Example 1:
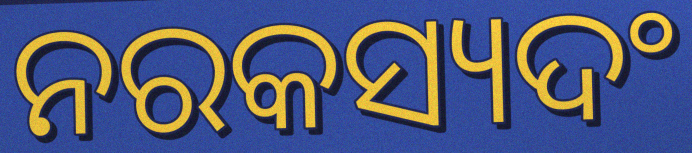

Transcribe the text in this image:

ନରକସ୍ୟଦଂ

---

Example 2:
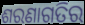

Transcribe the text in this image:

ଶରଣାଗତିର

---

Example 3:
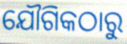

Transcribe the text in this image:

ଯୌଗିକଠାରୁ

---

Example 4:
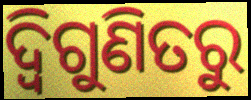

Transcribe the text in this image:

ଦ୍ୱିଗୁଣିତରୁ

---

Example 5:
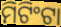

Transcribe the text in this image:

ମିଟିଂଟା